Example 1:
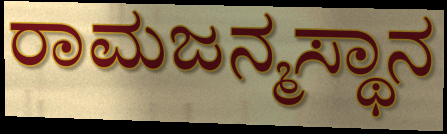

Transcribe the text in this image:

ರಾಮಜನ್ಮಸ್ಥಾನ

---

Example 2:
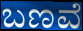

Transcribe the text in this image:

ಬಣವೆ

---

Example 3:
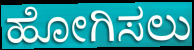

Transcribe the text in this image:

ಹೋಗಿಸಲು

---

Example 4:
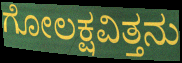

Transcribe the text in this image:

ಗೋಲಕ್ಷವಿತ್ತನು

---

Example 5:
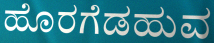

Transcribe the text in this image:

ಹೊರಗೆಡಹುವ